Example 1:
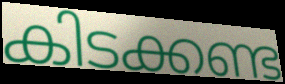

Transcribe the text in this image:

കിടക്കണ്ട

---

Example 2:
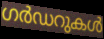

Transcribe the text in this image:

ഗർഡറുകൾ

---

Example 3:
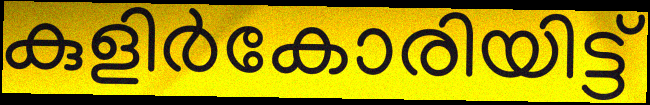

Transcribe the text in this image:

കുളിർകോരിയിട്ട്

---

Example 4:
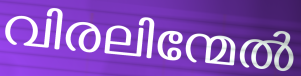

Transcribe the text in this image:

വിരലിന്മേൽ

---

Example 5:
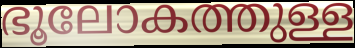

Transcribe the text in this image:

ഭൂലോകത്തുള്ള